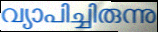
വ്യാപിച്ചിരുന്നു